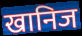
खानिज